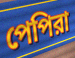
পেপিরা